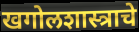
खगोलशास्त्राचे